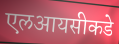
एलआयसीकडे